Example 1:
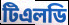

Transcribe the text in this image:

টিএলডি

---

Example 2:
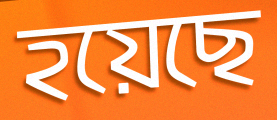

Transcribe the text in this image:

হয়েছে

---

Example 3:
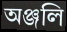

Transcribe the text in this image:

অঞ্জলি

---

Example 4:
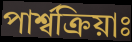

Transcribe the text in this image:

পাৰ্শ্বক্ৰিয়াঃ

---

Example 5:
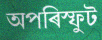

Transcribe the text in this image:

অপৰিস্ফুট